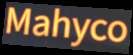
Mahyco